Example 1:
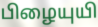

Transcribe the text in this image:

பிழையுயி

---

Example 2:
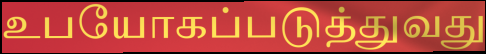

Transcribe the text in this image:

உபயோகப்படுத்துவது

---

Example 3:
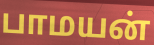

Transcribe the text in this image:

பாமயன்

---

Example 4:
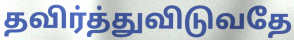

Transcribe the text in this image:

தவிர்த்துவிடுவதே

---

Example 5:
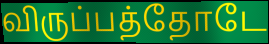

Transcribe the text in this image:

விருப்பத்தோடே